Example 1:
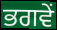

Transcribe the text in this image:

ਭਗਵੇਂ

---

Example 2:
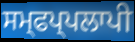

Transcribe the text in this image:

ਸਮ੍ਫਪ੍ਪਲਾਪੀ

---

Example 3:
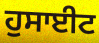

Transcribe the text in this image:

ਹੁਸਾਈਟ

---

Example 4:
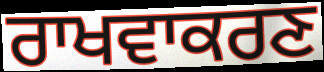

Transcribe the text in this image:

ਰਾਖਵਾਕਰਣ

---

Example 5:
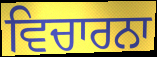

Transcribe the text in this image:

ਵਿਚਾਰਨਾ